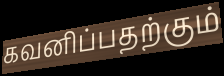
கவனிப்பதற்கும்